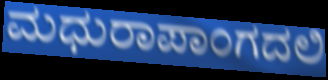
ಮಧುರಾಪಾಂಗದಲಿ